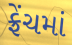
ફ્રેંચમાં